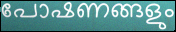
പോഷണങ്ങളും